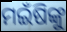
ମଇଁଷିଙ୍କୁ